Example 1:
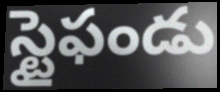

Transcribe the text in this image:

స్టైఫండు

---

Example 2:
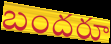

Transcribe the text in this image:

బందరూ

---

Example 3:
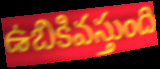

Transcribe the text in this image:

ఉబికివస్తుంది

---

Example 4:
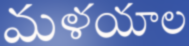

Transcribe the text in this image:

మళయాల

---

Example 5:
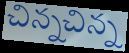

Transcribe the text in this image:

చిన్నచిన్న